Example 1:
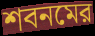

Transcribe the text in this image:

শবনমের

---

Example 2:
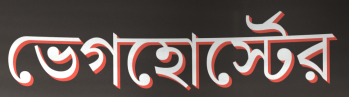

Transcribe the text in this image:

ভেগহোর্স্টের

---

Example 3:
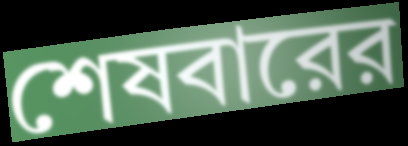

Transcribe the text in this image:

শেষবারের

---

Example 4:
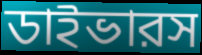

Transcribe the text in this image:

ডাইভারস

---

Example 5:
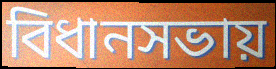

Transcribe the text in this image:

বিধানসভায়